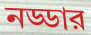
নড্ডার